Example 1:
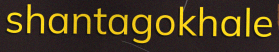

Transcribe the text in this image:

shantagokhale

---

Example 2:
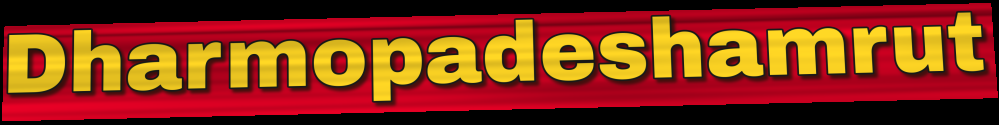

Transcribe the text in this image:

Dharmopadeshamrut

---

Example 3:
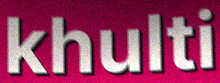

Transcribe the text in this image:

khulti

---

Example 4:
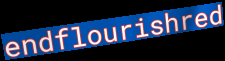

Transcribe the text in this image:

endflourishred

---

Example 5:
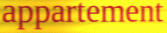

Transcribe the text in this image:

appartement